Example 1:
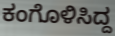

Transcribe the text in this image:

ಕಂಗೊಳಿಸಿದ್ದ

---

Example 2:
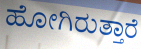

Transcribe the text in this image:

ಹೋಗಿರುತ್ತಾರೆ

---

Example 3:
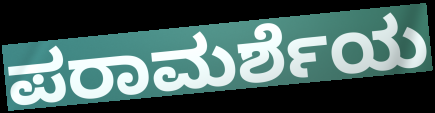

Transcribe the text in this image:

ಪರಾಮರ್ಶೆಯ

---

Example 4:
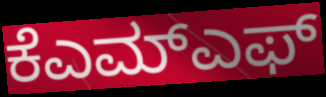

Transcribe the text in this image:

ಕೆಎಮ್ಎಫ್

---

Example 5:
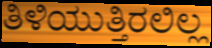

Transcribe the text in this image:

ತಿಳಿಯುತ್ತಿರಲಿಲ್ಲ